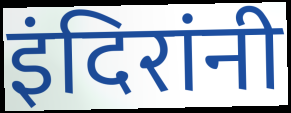
इंदिरांनी